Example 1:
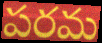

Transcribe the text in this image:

పరమ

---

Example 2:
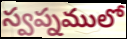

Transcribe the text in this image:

స్వప్నములో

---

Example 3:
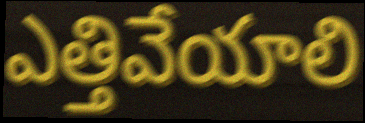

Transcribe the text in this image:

ఎత్తివేయాలి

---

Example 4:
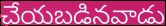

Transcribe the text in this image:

చేయబడినవాడు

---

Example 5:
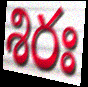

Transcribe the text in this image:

శిరః